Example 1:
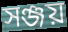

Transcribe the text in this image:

সঞ্জয়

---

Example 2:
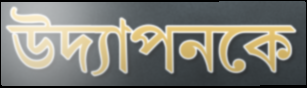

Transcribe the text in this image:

উদ্যাপনকে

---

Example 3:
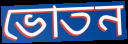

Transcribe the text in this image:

ভোতন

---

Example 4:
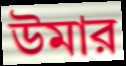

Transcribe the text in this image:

উমার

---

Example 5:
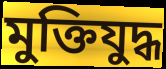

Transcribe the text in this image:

মুক্তিযুদ্ধ